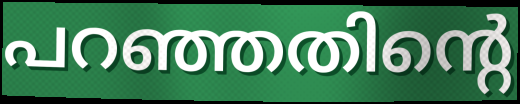
പറഞ്ഞതിന്റെ